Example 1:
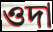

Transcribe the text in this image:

ওদা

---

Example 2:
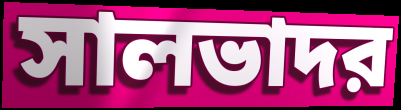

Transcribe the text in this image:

সালভাদর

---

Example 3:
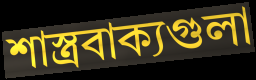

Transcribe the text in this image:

শাস্ত্রবাক্যগুলা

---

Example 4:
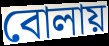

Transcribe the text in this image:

বোলায়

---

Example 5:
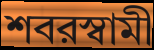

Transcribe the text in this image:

শবরস্বামী